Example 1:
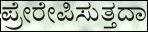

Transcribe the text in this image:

ಪ್ರೇರೇಪಿಸುತ್ತದಾ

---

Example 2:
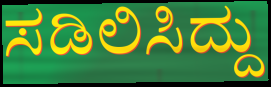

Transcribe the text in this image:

ಸಡಿಲಿಸಿದ್ದು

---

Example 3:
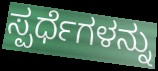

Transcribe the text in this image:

ಸ್ಪರ್ಧೆಗಳನ್ನು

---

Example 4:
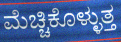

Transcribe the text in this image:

ಮೆಚ್ಚಿಕೊಳ್ಳುತ್ತ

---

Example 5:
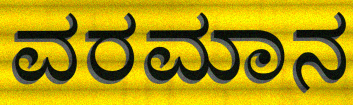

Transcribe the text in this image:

ವರಮಾನ